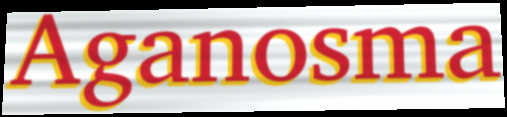
Aganosma